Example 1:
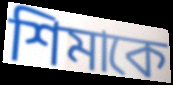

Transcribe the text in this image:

শিমাকে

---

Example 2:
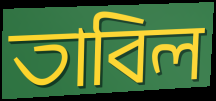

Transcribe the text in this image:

তাবিল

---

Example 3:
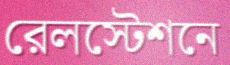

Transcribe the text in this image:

রেলস্টেশনে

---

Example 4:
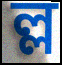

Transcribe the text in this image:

ল্ল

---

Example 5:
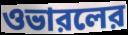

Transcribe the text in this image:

ওভারলের